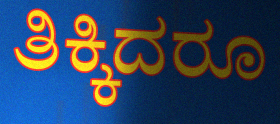
ತಿಕ್ಕಿದರೂ